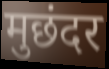
मुछंदर